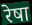
रेषा